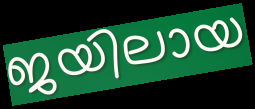
ജയിലായ